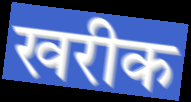
खरीक